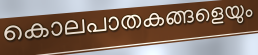
കൊലപാതകങ്ങളെയും